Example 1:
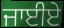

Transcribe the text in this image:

ਜਾਈਏ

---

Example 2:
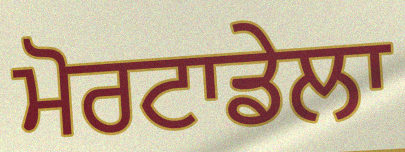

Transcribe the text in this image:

ਮੋਰਟਾਡੇਲਾ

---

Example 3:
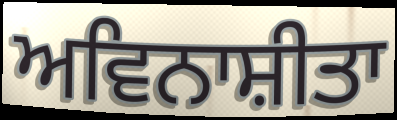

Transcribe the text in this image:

ਅਵਿਨਾਸ਼ੀਤਾ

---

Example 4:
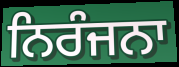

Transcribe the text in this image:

ਨਿਰੰਜਨਾ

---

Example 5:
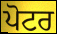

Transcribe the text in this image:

ਪੋਟਰ